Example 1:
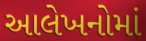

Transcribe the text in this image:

આલેખનોમાં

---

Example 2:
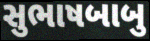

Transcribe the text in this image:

સુભાષબાબુ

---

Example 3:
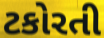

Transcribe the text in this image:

ટકોરતી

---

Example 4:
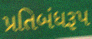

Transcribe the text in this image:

પ્રતિબંધરૂપ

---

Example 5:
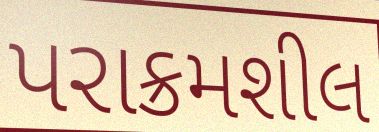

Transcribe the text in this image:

પરાક્રમશીલ